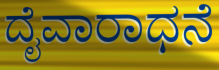
ದೈವಾರಾಧನೆ